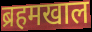
ब्रहमखाल